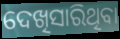
ଦେଖିସାରିଥିବା